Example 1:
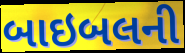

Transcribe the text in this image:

બાઇબલની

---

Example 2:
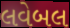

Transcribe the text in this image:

લવેબલ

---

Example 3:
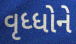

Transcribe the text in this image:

વૃધ્ધોને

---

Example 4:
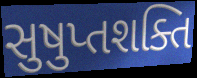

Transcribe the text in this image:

સુષુપ્તશક્તિ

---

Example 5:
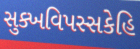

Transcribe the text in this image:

સુક્ખવિપસ્સકેહિ